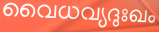
വൈധവ്യദുഃഖം